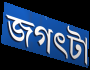
জগৎটা